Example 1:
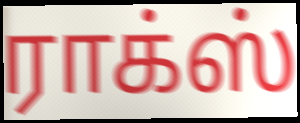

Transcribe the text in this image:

ராக்ஸ்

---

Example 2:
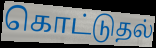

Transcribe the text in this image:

கொட்டுதல்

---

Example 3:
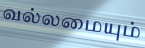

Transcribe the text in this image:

வல்லமையும்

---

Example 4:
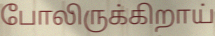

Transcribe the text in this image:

போலிருக்கிறாய்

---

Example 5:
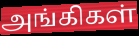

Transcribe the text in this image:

அங்கிகள்